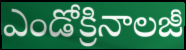
ఎండోక్రినాలజీ